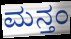
ಮನ್ತಂ